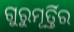
ଗୁରୁମୂର୍ତ୍ତିର